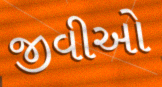
જીવીઓ